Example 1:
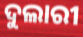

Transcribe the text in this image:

ଦୁଲାରୀ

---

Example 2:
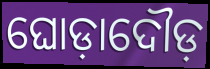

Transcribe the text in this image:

ଘୋଡ଼ାଦୌଡ଼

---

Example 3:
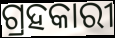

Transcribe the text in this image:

ଗ୍ରହକାରୀ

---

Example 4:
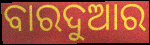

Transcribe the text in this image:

ବାରଦୁଆର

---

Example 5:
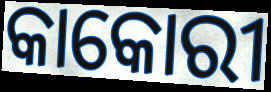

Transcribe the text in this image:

କାକୋରୀ